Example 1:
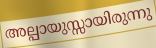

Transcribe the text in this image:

അല്പായുസ്സായിരുന്നു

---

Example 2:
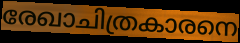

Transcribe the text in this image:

രേഖാചിത്രകാരനെ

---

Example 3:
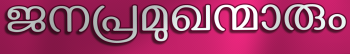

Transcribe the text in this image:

ജനപ്രമുഖന്മാരും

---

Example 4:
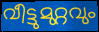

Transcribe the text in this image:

വീട്ടുമുറ്റവും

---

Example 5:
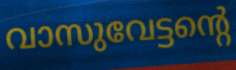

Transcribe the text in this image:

വാസുവേട്ടന്റെ